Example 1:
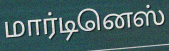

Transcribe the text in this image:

மார்டினெஸ்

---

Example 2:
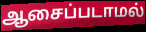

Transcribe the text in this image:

ஆசைப்படாமல்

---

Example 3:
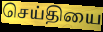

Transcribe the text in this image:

செய்தியை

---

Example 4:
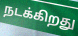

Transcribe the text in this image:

நடக்கிறது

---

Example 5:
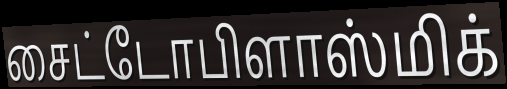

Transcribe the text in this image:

சைட்டோபிளாஸ்மிக்